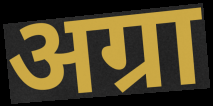
अग्रा